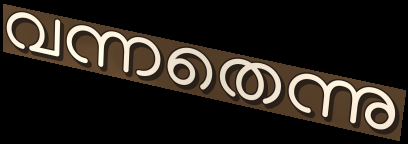
വന്നതെന്നു